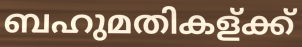
ബഹുമതികള്ക്ക്